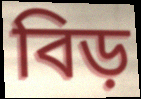
বিড়